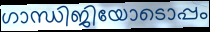
ഗാന്ധിജിയോടൊപ്പം